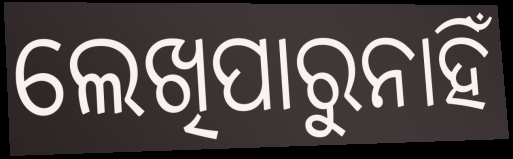
ଲେଖିପାରୁନାହିଁ